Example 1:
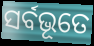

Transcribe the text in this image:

ସର୍ବଭୂତେ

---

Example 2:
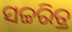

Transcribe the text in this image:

ସଚ୍ଚରିତ୍ର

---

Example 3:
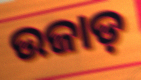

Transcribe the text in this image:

ଉଜାଡ଼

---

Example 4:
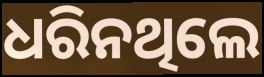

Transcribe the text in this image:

ଧରିନଥିଲେ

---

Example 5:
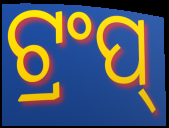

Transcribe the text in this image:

ଟ୍ରଂପ୍